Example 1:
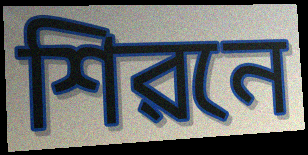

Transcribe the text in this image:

শিৱনে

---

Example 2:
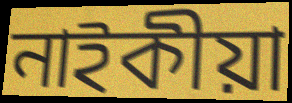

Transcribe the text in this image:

নাইকীয়া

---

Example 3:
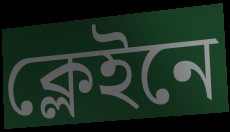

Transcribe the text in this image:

ক্লেইনে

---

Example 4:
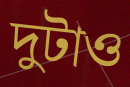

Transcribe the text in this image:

দুটাও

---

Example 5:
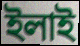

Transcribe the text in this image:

ইলাই